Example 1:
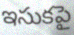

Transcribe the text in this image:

ఇసుకపై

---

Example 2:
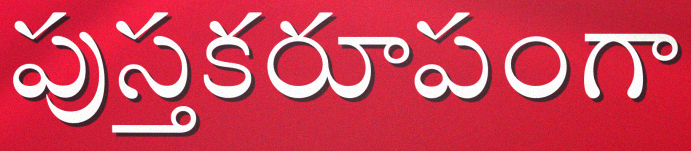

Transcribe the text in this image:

పుస్తకరూపంగా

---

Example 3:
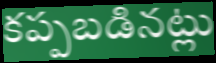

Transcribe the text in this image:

కప్పబడినట్లు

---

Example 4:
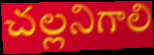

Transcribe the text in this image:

చల్లనిగాలి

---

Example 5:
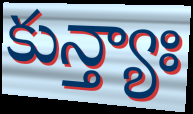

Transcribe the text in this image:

కున్త్యాః